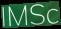
IMSc